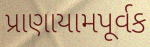
પ્રાણાયામપૂર્વક